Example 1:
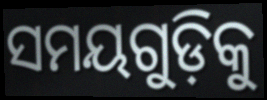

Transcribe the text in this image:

ସମୟଗୁଡ଼ିକୁ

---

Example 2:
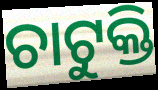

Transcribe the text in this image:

ଚାଟୁକ୍ତି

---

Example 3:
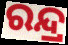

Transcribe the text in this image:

ରନ୍ଦ୍ର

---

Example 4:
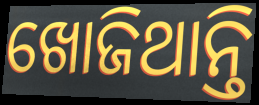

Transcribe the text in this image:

ଖୋଜିଥାନ୍ତି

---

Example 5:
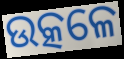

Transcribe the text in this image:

ଉତ୍କଳେ